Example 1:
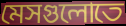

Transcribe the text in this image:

মেসগুলোতে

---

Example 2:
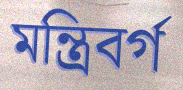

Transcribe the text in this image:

মন্ত্রিবর্গ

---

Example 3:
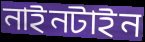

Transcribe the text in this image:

নাইনটাইন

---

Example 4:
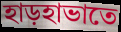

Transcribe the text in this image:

হাড়হাভাতে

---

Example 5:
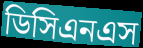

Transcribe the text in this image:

ডিসিএনএস